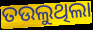
ତଉଲୁଥିଲା